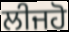
ਲੀਜਹੋ